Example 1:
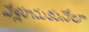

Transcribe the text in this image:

వేళ్లూనుకునేలా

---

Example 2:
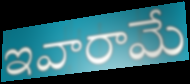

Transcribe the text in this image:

ఇవారామే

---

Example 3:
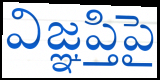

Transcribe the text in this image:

విజ్ఞప్తిపై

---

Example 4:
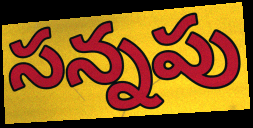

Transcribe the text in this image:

సన్నపు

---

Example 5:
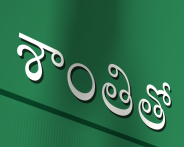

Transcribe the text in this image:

శాంతితో